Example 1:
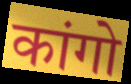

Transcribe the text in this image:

कांगो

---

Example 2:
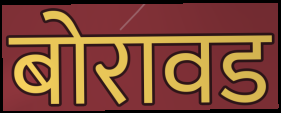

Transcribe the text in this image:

बोरावड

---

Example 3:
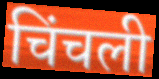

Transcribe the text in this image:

चिंचली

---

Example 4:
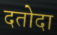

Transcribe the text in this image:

दतोदा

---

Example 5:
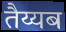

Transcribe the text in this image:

तैय्यब